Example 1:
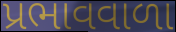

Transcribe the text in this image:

પ્રભાવવાળા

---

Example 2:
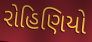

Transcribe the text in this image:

રોહિણિયો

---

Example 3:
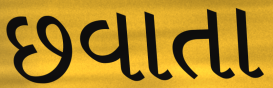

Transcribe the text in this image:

છવાતા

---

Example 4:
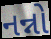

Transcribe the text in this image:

નન્નો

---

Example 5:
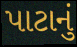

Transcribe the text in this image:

પાટાનું